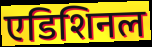
एडिशिनल